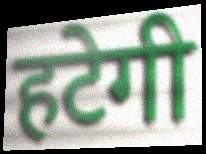
हटेगी